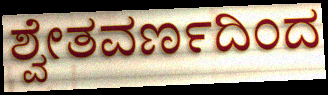
ಶ್ವೇತವರ್ಣದಿಂದ